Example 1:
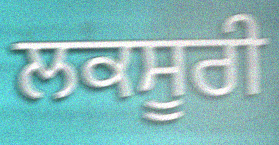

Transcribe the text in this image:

ਲਕਸੂਰੀ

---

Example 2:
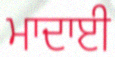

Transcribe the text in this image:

ਮਾਦਾਈ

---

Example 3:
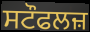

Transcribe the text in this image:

ਸਟੌਫਲਜ਼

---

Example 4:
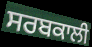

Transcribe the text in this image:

ਸਰਬਕਾਲੀ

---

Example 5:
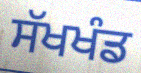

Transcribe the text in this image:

ਸੱਖਖੰਡ